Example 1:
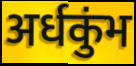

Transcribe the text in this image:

अर्धकुंभ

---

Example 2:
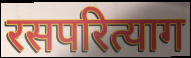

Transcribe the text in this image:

रसपरित्याग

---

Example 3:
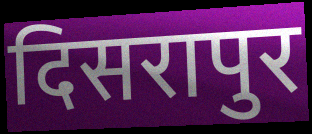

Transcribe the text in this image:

दिसरापुर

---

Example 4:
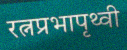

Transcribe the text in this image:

रत्नप्रभापृथ्वी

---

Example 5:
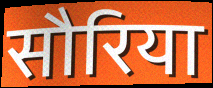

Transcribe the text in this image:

सौरिया